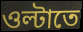
ওল্টাতে